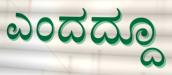
ಎಂದದ್ದೂ